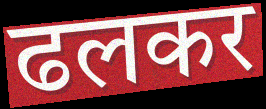
ढलकर